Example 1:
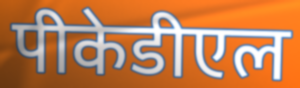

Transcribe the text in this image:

पीकेडीएल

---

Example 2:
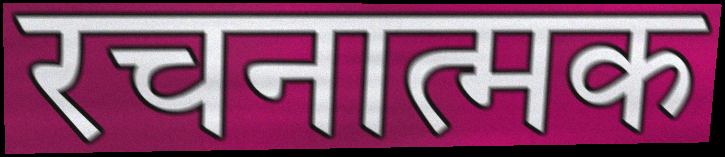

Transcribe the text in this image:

रचनात्मक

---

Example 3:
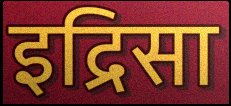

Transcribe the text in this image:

इद्रिसा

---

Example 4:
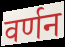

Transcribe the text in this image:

वर्णन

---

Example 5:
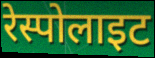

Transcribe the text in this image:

रेस्पोलाइट